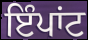
ਇੰਪਾਂਟ